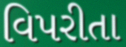
વિપરીતા